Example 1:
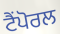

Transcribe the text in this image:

ਟੈਂਪੋਰਲ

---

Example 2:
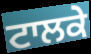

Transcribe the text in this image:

ਟਾਲਕੇ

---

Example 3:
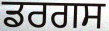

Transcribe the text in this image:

ਡਰਗਸ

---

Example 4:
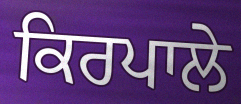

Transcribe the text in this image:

ਕਿਰਪਾਲੇ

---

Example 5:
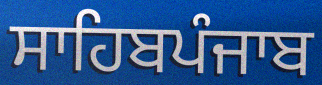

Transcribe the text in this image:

ਸਾਹਿਬਪੰਜਾਬ